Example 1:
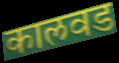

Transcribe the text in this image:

कालवड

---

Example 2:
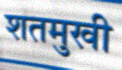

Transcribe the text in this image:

शतमुखी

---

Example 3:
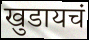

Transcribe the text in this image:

खुडायचं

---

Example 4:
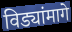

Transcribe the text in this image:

विड्यांमागे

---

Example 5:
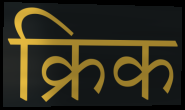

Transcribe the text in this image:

क्रिक